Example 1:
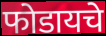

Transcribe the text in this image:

फोडायचे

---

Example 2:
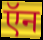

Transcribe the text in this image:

ऍन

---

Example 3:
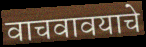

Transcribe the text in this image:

वाचवावयाचे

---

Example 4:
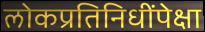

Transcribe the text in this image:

लोकप्रतिनिधींपेक्षा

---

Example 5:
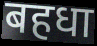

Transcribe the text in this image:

बहधा